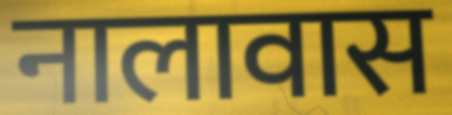
नालावास